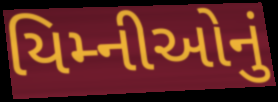
યિમ્નીઓનું